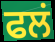
ਫਲਂ